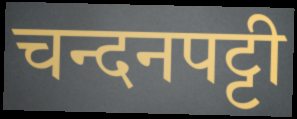
चन्दनपट्टी